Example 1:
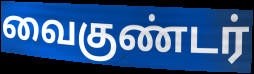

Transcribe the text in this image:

வைகுண்டர்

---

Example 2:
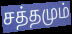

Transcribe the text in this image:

சத்தமும்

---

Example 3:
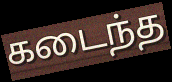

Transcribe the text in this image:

கடைந்த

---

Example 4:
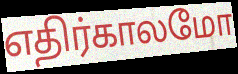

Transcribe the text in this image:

எதிர்காலமோ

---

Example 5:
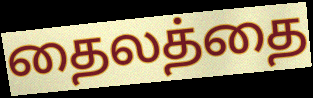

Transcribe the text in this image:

தைலத்தை